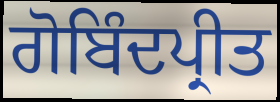
ਗੋਬਿੰਦਪ੍ਰੀਤ